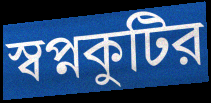
স্বপ্নকুটির